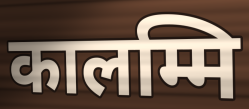
कालम्मि